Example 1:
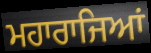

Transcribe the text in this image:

ਮਹਾਰਾਜਿਆਂ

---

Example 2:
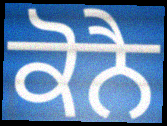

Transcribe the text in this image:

ਕੋਨੈ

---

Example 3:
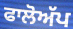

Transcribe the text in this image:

ਫਾਲੋਅੱਪ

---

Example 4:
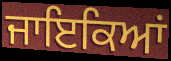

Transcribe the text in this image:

ਜਾਇਕਿਆਂ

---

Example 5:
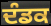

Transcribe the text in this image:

ਦੰਡਕ